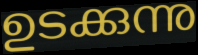
ഉടക്കുന്നു